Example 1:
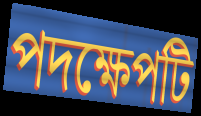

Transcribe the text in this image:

পদক্ষেপটি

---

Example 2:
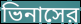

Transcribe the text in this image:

ভিনাসের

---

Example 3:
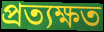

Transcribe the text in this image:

প্রত্যক্ষত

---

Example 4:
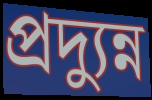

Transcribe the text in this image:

প্রদ্যুন্ন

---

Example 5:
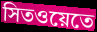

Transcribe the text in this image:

সিতওয়েতে